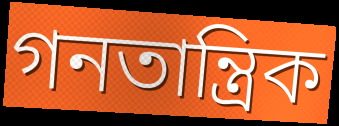
গনতান্ত্ৰিক